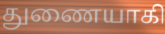
துணையாகி